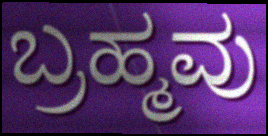
ಬ್ರಹ್ಮವು